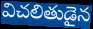
విచలితుడైన